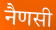
नैणसी